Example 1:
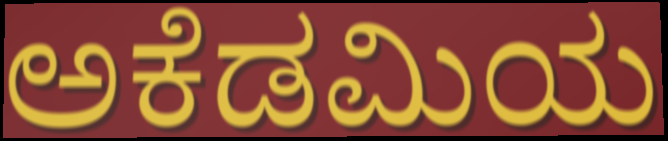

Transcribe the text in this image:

ಅಕೆಡಮಿಯ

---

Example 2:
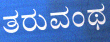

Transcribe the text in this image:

ತರುವಂಥ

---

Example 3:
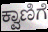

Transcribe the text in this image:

ಕ್ವಾಣಿಗೆ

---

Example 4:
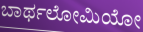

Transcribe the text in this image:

ಬಾರ್ಥಲೋಮಿಯೋ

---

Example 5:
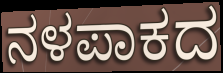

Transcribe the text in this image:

ನಳಪಾಕದ